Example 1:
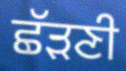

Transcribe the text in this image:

ਛੱੜਣੀ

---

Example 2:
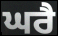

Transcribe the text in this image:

ਘਰੈ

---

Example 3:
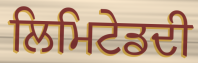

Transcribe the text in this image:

ਲਿਮਿਟੇਡਦੀ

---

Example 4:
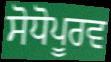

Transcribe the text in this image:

ਸੋਧੋਪੂਰਵ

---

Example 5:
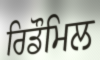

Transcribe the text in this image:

ਰਿਡੌਮਿਲ